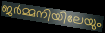
ജർമ്മനിയിലേയും